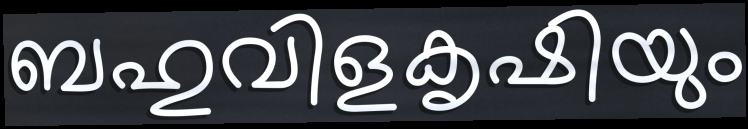
ബഹുവിളകൃഷിയും